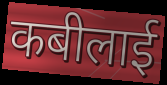
कबीलाई